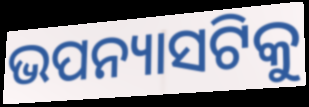
ଭପନ୍ୟାସଟିକୁ